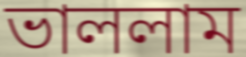
ভাললাম